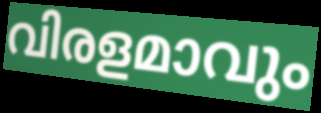
വിരളമാവും